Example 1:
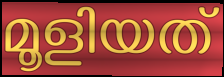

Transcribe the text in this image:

മൂളിയത്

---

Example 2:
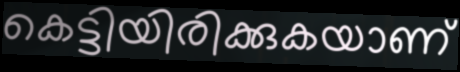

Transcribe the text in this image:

കെട്ടിയിരിക്കുകയാണ്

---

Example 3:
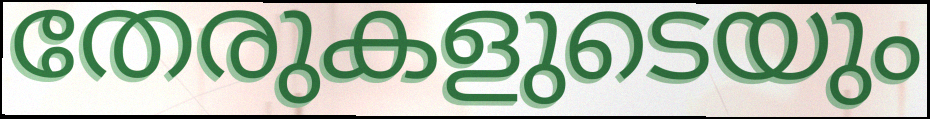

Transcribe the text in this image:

തേരുകളുടെയും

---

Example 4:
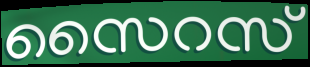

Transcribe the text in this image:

സൈറസ്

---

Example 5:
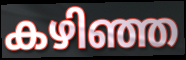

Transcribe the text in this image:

കഴിഞ്ഞ